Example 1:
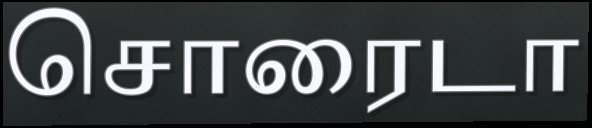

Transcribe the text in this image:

சொரைடா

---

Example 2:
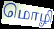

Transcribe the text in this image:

மொழி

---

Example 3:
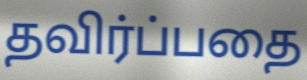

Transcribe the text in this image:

தவிர்ப்பதை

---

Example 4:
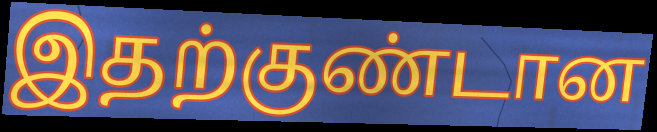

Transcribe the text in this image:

இதற்குண்டான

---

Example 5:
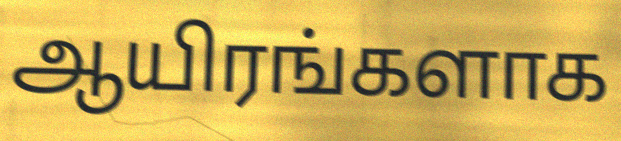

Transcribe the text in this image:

ஆயிரங்களாக